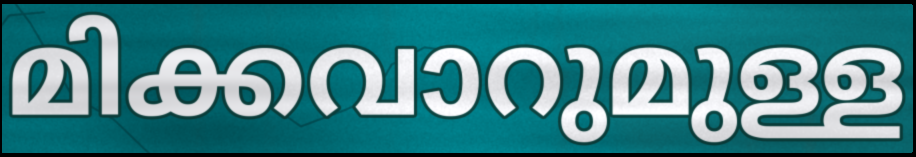
മിക്കവാറുമുള്ള